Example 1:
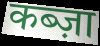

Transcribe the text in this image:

कब्ज़ा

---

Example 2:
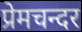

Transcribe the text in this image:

प्रेमचन्दर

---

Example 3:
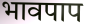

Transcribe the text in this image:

भावपाप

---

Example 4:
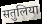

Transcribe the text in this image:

सतुलिया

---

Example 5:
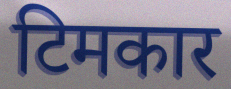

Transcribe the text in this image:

टिमकार